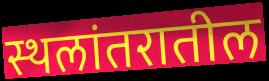
स्थलांतरातील